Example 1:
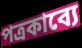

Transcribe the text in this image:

পত্রকাব্যে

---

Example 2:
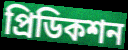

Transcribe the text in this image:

প্রিডিকশন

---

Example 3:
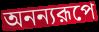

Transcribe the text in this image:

অনন্যরূপে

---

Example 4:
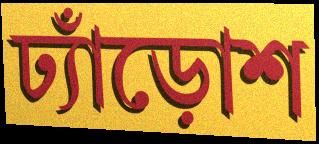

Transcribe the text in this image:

ঢ্যাঁড়োশ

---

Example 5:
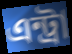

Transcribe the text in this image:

এন্ট্রা